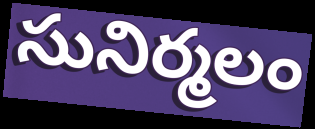
సునిర్మలం